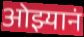
ओझ्यानं